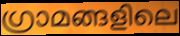
ഗ്രാമങ്ങളിലെ